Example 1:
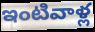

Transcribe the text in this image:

ఇంటివాళ్ల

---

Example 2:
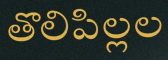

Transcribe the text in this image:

తొలిపిల్లల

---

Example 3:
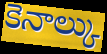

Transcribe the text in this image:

కెనాల్కు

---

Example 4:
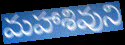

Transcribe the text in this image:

మహాశివుని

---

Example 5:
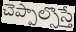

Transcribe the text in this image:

చెప్పాల్సొస్తే